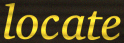
locate